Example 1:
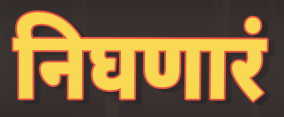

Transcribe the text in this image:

निघणारं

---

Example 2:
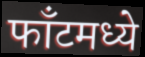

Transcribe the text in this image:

फाँटमध्ये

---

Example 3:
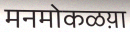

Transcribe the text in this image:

मनमोकळय़ा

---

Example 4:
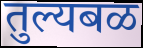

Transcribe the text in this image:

तुल्यबळ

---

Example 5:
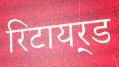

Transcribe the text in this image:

रिटायर्ड